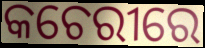
କଚେରୀରେ